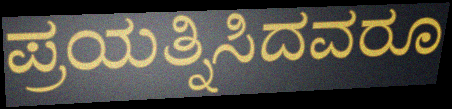
ಪ್ರಯತ್ನಿಸಿದವರೂ